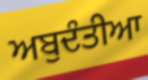
ਅਬੁਦੰਤੀਆ